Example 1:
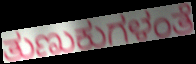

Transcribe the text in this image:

ತುಣುಕುಗಳಂತೆ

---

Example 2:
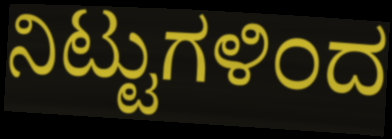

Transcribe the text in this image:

ನಿಟ್ಟುಗಳಿಂದ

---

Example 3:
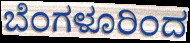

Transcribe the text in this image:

ಬೆಂಗಳೂರಿಂದ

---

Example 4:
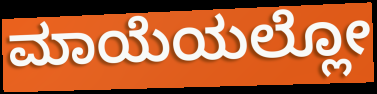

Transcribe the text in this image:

ಮಾಯೆಯಲ್ಲೋ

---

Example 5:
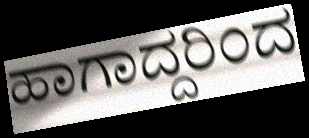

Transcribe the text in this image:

ಹಾಗಾದ್ದರಿಂದ